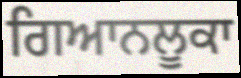
ਗਿਆਨਲੂਕਾ